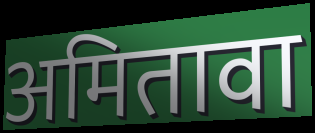
अमितावा